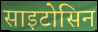
साइटोसिन